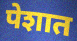
पेशात